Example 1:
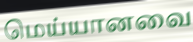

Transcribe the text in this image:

மெய்யானவை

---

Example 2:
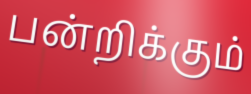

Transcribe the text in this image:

பன்றிக்கும்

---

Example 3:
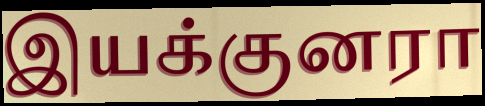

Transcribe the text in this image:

இயக்குனரா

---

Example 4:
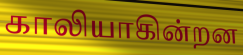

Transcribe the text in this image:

காலியாகின்றன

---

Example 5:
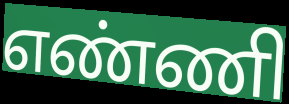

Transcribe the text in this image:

எண்ணி